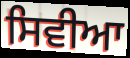
ਸਿਵੀਆ